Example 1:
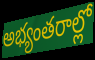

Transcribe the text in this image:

అభ్యంతరాల్లో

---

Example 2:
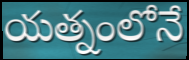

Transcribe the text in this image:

యత్నంలోనే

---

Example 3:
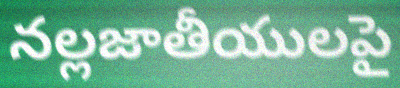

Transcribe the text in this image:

నల్లజాతీయులపై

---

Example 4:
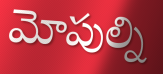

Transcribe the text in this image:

మోపుల్ని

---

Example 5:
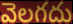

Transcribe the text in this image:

వెలగదు